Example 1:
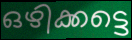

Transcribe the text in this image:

ഒഴിക്കട്ടെ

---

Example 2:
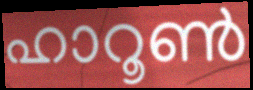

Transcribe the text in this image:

ഹാറൂൺ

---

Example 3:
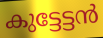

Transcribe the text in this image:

കുട്ടേട്ടൻ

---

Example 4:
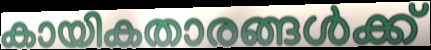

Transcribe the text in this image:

കായികതാരങ്ങൾക്ക്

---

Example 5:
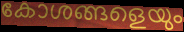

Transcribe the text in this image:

കോശങ്ങളെയും